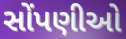
સોંપણીઓ